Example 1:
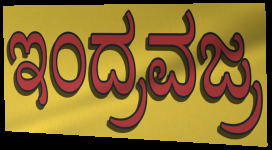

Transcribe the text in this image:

ಇಂದ್ರವಜ್ರ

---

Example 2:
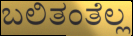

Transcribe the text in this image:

ಬಲಿತಂತೆಲ್ಲ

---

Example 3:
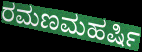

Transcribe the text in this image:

ರಮಣಮಹರ್ಷಿ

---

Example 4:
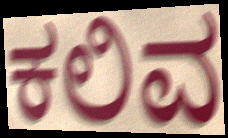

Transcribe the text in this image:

ಕಲಿವ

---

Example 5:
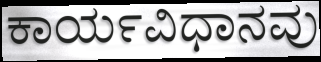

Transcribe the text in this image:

ಕಾರ್ಯವಿಧಾನವು